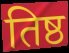
तिष्ठ